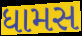
ધામસ